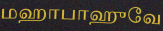
மஹாபாஹுவே